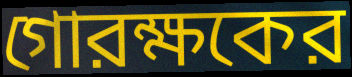
গোরক্ষকের